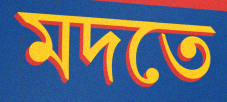
মদতে